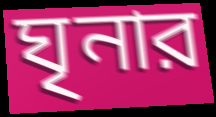
ঘৃনার